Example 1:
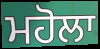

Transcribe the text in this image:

ਮਹੋਲਾ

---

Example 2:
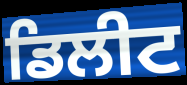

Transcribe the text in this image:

ਡਿਲੀਟ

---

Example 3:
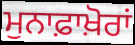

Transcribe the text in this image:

ਮੁਨਾਫ਼ਾਖ਼ੋਰਾਂ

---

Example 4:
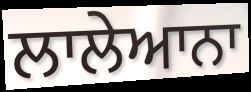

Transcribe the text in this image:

ਲਾਲੇਆਨਾ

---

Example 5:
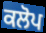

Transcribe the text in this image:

ਕਲੋਪ